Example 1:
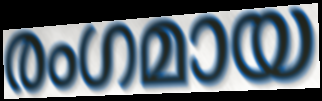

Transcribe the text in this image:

രംഗമായ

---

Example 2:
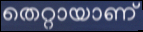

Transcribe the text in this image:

തെറ്റായാണ്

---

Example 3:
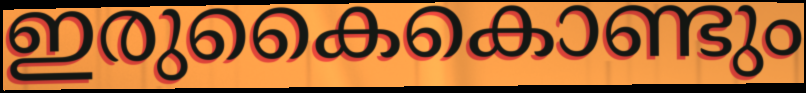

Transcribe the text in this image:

ഇരുകൈകൊണ്ടും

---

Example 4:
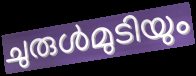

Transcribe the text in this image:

ചുരുൾമുടിയും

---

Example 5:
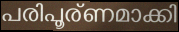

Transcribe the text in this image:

പരിപൂര്ണമാക്കി